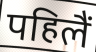
पहिलैं